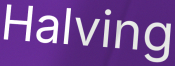
Halving